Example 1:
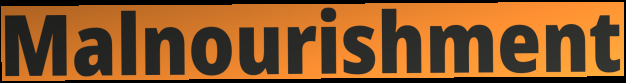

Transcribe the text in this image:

Malnourishment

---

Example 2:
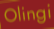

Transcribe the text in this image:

Olingi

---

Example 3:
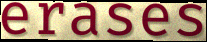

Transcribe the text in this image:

erases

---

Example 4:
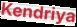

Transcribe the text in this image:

Kendriya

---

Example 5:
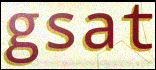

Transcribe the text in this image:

gsat